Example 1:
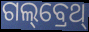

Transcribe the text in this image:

ଗଲ୍‌ବ୍ରେଥ୍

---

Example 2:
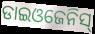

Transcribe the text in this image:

ଡାଇଓଜେନିସ୍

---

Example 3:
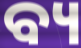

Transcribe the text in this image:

ବ୍ୟ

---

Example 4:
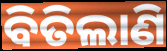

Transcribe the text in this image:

ବିତିଲାଣି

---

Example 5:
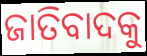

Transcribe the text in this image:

ଜାତିବାଦକୁ